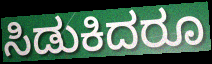
ಸಿಡುಕಿದರೂ